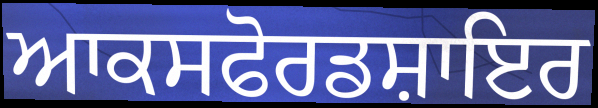
ਆਕਸਫੋਰਡਸ਼ਾਇਰ